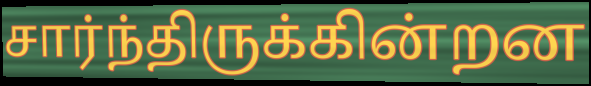
சார்ந்திருக்கின்றன